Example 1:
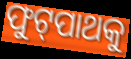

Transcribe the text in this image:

ଫୁଟ୍‌ପାଥକୁ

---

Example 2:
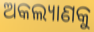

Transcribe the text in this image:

ଅକଲ୍ୟାଣକୁ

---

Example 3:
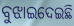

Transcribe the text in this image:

ବୁଝାଇଦେଇଛି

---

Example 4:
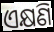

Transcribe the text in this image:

ଏକ୍ଷଣି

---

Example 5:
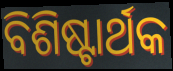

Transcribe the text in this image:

ବିଶିଷ୍ଟାର୍ଥକ